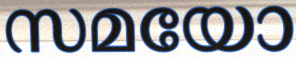
സമയോ